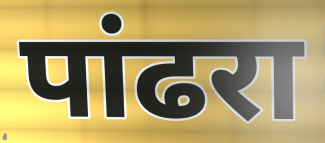
पांढरा